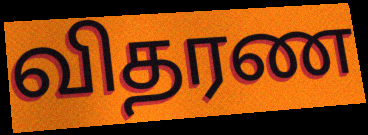
விதரண